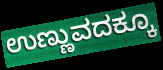
ಉಣ್ಣುವದಕ್ಕೂ